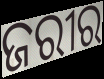
ଜରୀର